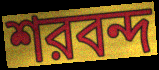
শরবন্দ